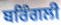
ਬਰਿੰਗਲੀ